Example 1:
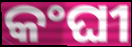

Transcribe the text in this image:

କଂଘୀ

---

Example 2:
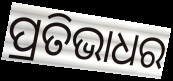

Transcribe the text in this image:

ପ୍ରତିଭାଧର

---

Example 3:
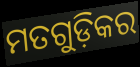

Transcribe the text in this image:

ମତଗୁଡ଼ିକର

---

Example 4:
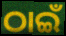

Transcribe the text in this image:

ଠାଇଁ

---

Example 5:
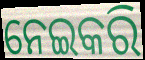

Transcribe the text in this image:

ନେଇକରି